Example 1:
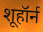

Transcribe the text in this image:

शूहॉर्न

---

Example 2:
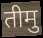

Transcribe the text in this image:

तीमु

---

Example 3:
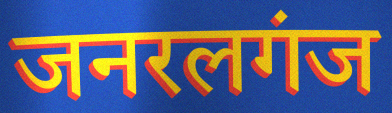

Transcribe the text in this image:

जनरलगंज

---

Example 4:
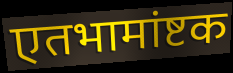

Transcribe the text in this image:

एतभामांष्टक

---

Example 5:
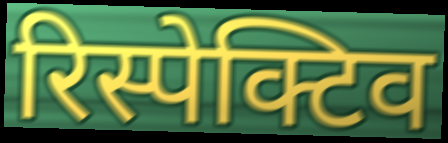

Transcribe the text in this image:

रिस्पेक्टिव